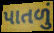
પાતળું